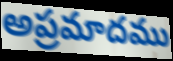
అప్రమాదము